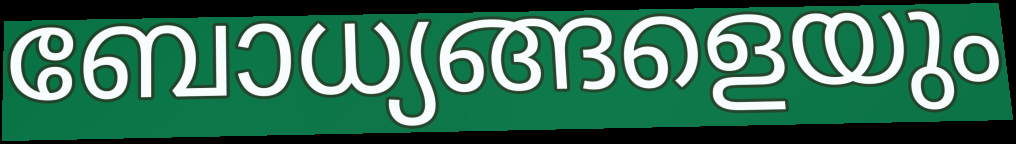
ബോധ്യങ്ങളെയും